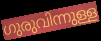
ഗുരുവിന്നുള്ള